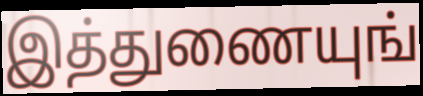
இத்துணையுங்